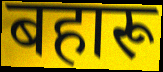
बहारू